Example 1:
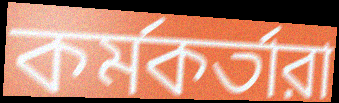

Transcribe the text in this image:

কর্মকর্তারা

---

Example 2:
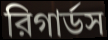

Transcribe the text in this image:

রিগার্ডস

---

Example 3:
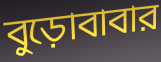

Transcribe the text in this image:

বুড়োবাবার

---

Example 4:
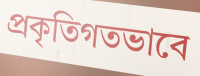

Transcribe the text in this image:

প্রকৃতিগতভাবে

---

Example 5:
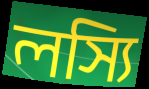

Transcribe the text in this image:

লস্যি